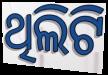
ଥିଲିଟି